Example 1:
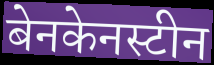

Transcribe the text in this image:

बेनकेनस्टीन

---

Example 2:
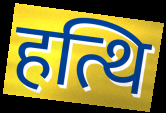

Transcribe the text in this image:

हत्थि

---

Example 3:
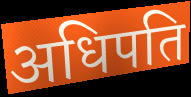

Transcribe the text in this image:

अधिपति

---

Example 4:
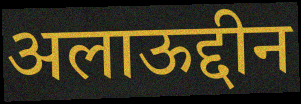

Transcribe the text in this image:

अलाऊद्दीन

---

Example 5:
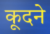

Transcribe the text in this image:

कूदने